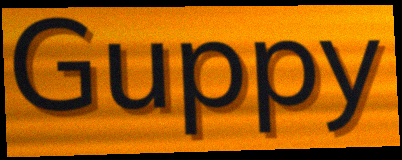
Guppy